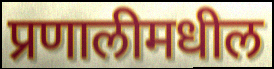
प्रणालीमधील